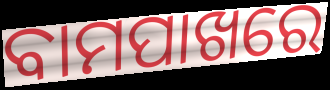
ବାମପାଖରେ